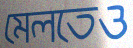
মেলতেও